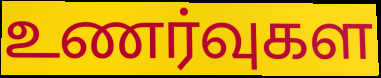
உணர்வுகள